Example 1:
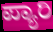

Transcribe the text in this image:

ಪ್ಯಾರಿ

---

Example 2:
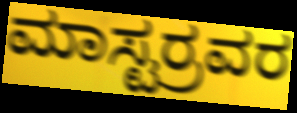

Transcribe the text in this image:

ಮಾಸ್ಟರ್ರವರ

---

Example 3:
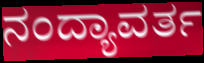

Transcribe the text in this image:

ನಂದ್ಯಾವರ್ತ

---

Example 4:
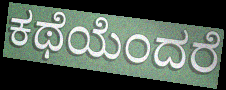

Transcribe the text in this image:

ಕಥೆಯೆಂದರೆ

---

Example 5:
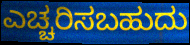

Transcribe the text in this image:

ಎಚ್ಚರಿಸಬಹುದು